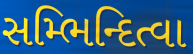
સમ્ભિન્દિત્વા